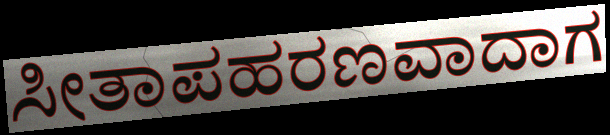
ಸೀತಾಪಹರಣವಾದಾಗ